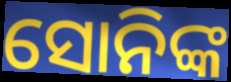
ସୋନିଙ୍କ